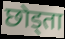
छोड्ता